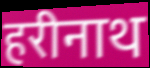
हरीनाथ